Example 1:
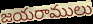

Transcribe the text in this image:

జయరాములు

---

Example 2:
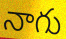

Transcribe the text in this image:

నాగు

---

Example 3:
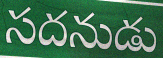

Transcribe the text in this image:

సదనుడు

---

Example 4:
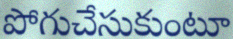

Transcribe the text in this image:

పోగుచేసుకుంటూ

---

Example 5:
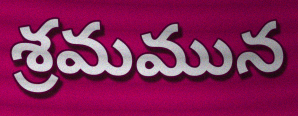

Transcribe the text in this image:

శ్రమమున